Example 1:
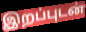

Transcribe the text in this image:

இறப்புடன்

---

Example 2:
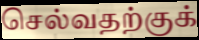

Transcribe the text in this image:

செல்வதற்குக்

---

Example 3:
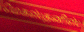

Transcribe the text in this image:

மெகஸ்தனிஸ்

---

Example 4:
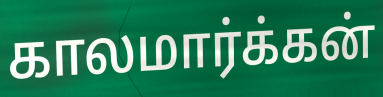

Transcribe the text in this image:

காலமார்க்கன்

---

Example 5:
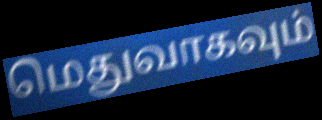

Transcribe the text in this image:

மெதுவாகவும்